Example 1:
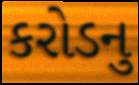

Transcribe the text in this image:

કરોડનુ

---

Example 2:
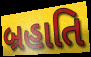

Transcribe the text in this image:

બ્રહાતિ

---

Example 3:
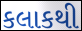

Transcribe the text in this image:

કલાકથી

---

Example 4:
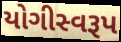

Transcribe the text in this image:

યોગીસ્વરૂપ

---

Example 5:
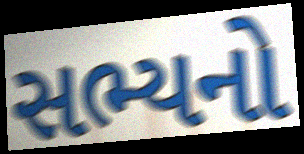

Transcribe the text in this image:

સભ્યનો